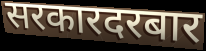
सरकारदरबार